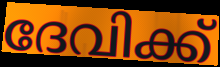
ദേവിക്ക്